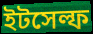
ইটসেল্ফ